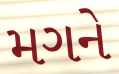
મગને